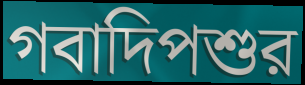
গবাদিপশুর